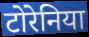
टोरेनिया